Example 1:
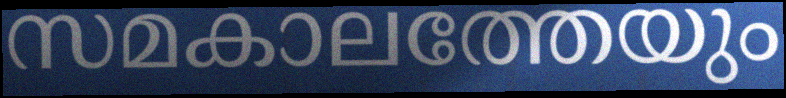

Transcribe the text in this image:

സമകാലത്തേയും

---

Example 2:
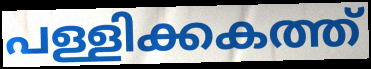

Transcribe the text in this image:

പള്ളിക്കകത്ത്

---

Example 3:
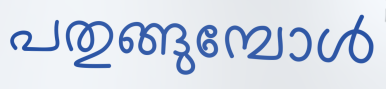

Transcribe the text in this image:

പതുങ്ങുമ്പോൾ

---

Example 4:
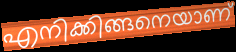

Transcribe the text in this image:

എനിക്കിങ്ങനെയാണ്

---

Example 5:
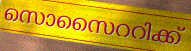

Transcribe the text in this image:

സൊസൈററിക്ക്